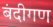
बंदीगण